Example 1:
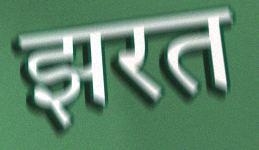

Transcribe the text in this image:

झरत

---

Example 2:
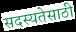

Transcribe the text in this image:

सदस्यतेसाठी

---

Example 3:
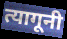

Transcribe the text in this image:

त्यागूनी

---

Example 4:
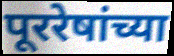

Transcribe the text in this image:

पूररेषांच्या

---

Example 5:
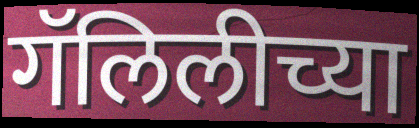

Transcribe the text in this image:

गॅलिलीच्या